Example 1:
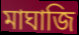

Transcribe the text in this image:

মাঘাজি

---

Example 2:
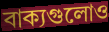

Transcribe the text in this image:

বাক্যগুলোও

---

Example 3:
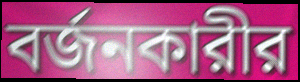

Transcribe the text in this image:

বর্জনকারীর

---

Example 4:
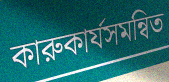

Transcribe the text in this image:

কারুকার্যসমন্বিত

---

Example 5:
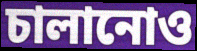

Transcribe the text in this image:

চালানোও